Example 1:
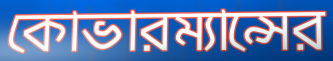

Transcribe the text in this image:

কোভারম্যান্সের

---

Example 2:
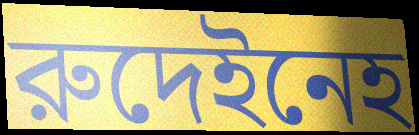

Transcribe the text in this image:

রুদেইনেহ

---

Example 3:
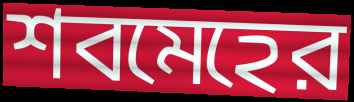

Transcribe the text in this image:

শবমেহের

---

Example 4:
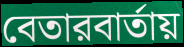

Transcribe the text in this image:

বেতারবার্তায়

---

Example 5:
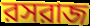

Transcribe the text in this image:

রসরাজ